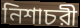
নিশাচরী